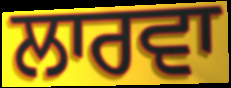
ਲਾਰਵਾ